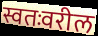
स्वतःवरील